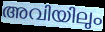
അവിയിലും